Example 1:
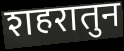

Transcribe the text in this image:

शहरातुन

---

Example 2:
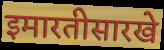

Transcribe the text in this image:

इमारतीसारखे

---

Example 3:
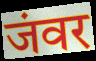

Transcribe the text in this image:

जंवर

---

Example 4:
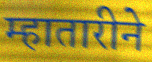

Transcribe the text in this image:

म्हातारीने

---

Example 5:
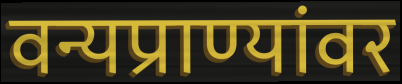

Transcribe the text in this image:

वन्यप्राण्यांवर